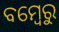
ବମ୍ବେରୁ